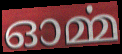
ഓൎമ്മ